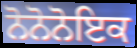
ਨੋਨੋਨੋਇਕ